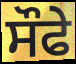
ਸੌਫੇ